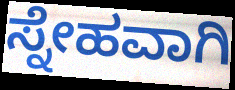
ಸ್ನೇಹವಾಗಿ